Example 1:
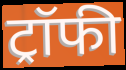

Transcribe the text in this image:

ट्रॉफी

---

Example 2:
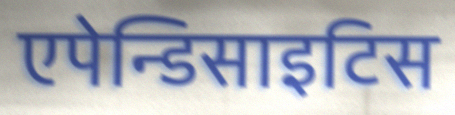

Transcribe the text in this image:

एपेन्डिसाइटिस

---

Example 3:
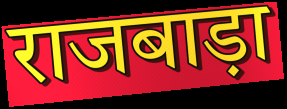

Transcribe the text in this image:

राजबाड़ा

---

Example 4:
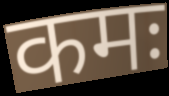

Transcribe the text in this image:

कमः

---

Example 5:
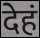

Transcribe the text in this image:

देहं